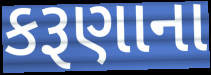
કરૂણાના